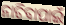
ନାଚିବାପାଇଁ